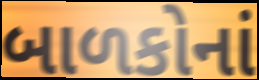
બાળકોનાં